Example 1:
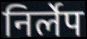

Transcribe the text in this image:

निर्लेप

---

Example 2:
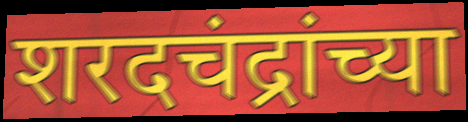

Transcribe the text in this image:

शरदचंद्रांच्या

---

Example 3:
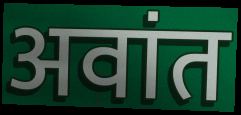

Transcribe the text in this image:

अवांत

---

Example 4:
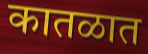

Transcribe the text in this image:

कातळात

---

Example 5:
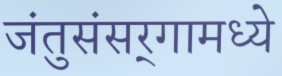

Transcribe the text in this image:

जंतुसंसर्गामध्ये